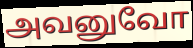
அவனுவோ